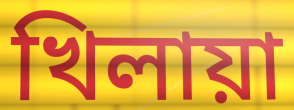
খিলায়া